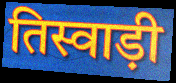
तिस्वाड़ी